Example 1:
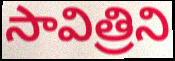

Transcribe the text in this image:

సావిత్రిని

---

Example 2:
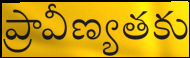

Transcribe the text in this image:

ప్రావీణ్యతకు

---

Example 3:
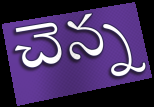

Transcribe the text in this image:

చెన్న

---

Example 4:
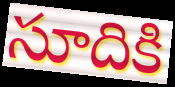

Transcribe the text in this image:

సూదికి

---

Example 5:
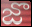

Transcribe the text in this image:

జొ